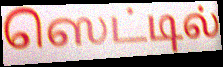
ஸெட்டில்